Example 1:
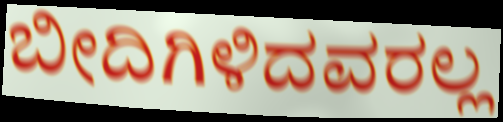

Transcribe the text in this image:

ಬೀದಿಗಿಳಿದವರಲ್ಲ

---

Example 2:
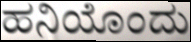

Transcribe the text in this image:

ಹನಿಯೊಂದು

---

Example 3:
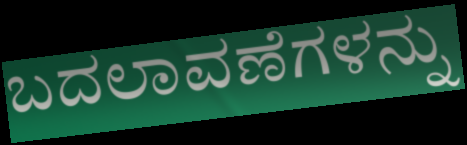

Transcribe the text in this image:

ಬದಲಾವಣೆಗಳನ್ನು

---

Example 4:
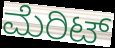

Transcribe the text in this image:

ಮೆರಿಟ್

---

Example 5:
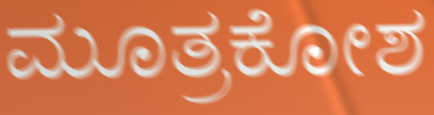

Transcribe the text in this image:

ಮೂತ್ರಕೋಶ